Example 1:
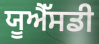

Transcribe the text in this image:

ਯੂਐੱਸਡੀ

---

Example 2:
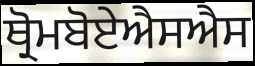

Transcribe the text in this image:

ਥ੍ਰੋਮਬੋਏਐਸਐਸ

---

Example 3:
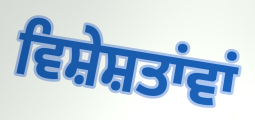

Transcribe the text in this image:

ਵਿਸ਼ੇਸ਼ਤਾਂਵਾਂ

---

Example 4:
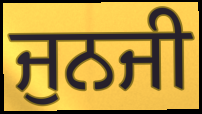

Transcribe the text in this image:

ਜੁਨਜੀ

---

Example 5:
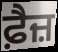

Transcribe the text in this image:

ਫ਼ੈਜ਼